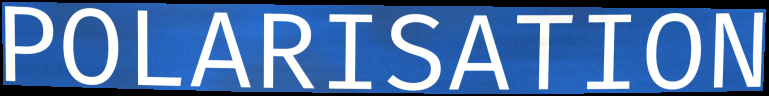
POLARISATION